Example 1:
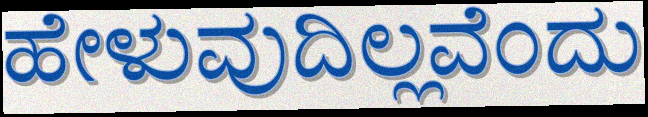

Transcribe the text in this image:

ಹೇಳುವುದಿಲ್ಲವೆಂದು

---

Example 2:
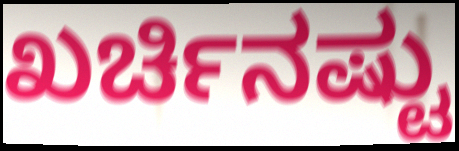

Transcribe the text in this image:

ಖರ್ಚಿನಷ್ಟು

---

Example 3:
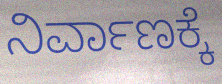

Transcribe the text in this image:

ನಿರ್ವಾಣಕ್ಕೆ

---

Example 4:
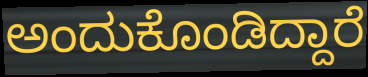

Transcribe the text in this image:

ಅಂದುಕೊಂಡಿದ್ದಾರೆ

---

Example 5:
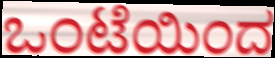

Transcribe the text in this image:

ಒಂಟೆಯಿಂದ